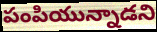
పంపియున్నాడని